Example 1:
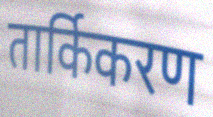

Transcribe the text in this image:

तार्किकरण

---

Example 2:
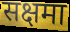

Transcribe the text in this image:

सक्षमा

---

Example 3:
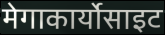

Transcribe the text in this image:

मेगाकार्योसाइट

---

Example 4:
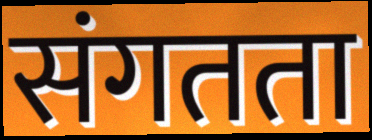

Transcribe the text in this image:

संगतता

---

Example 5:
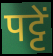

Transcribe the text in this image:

पट्टें